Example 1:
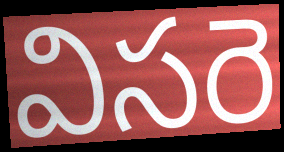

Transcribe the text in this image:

విసరె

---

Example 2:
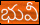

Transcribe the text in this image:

భువీ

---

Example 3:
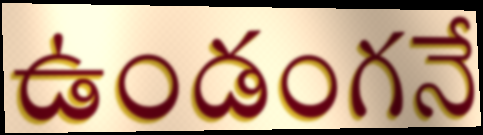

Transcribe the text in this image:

ఉండంగనే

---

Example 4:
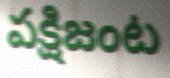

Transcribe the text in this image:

పక్షిజంట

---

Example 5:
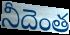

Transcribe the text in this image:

నీదెంత